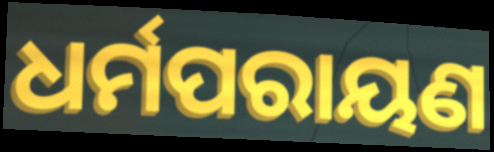
ଧର୍ମପରାୟଣ